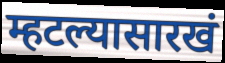
म्हटल्यासारखं